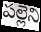
పల్లెని